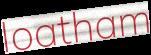
Ioatham